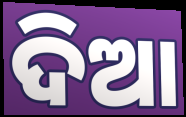
ଦିଆ